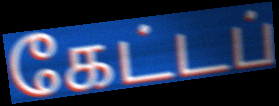
கேட்டப்